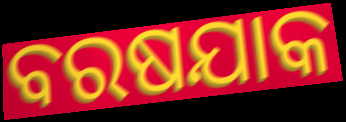
ବରଷଯାକ